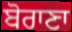
ਬੋਰਾਣਾ